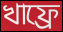
খাফ্রে